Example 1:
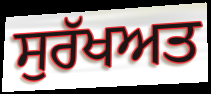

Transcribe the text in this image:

ਸੁਰੱਖਅਤ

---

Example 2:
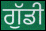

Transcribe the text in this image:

ਗੁੱਡੀ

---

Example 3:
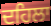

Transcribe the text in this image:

ਦਹਿਲਾ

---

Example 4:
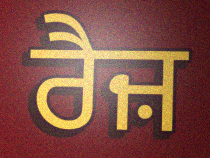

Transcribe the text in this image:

ਰੈਜ਼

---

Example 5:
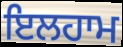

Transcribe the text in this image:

ਇਲਹਾਮ